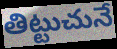
తిట్టుచునే